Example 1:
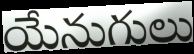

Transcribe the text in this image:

యేనుగులు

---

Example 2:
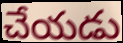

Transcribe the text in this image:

చేయడు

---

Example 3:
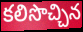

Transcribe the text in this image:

కలిసొచ్చిన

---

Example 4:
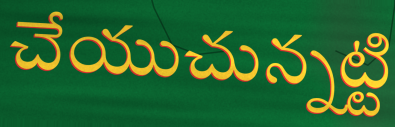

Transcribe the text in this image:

చేయుచున్నట్టి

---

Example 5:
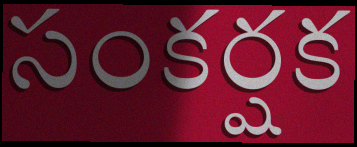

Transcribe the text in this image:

సంకర్షక